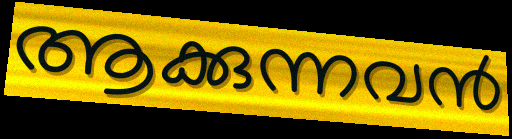
ആക്കുന്നവൻ